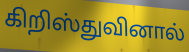
கிறிஸ்துவினால்